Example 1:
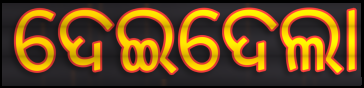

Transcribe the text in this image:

ଦେଇଦେଲା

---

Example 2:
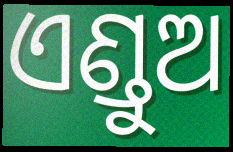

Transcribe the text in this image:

ଏଣ୍ଡୁଅ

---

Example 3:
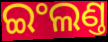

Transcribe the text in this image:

ଇଂଲଣ୍ତ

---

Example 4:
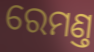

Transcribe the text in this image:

ରେମଣ୍ତ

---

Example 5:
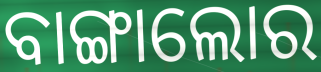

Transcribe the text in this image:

ବାଙ୍ଗାଲୋର